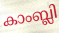
കാംബ്ലി